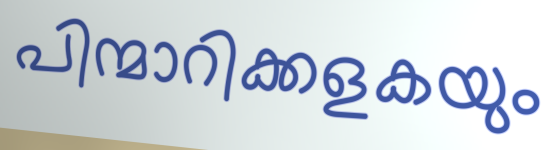
പിന്മാറിക്കളകയും